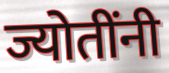
ज्योतींनी